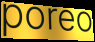
poreo